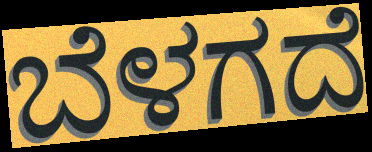
ಬೆಳಗದೆ